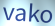
vako